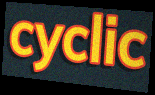
cyclic